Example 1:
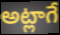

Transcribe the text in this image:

అట్లాగే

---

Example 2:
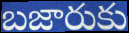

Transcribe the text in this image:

బజారుకు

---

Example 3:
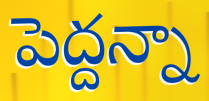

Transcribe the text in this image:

పెద్దన్నా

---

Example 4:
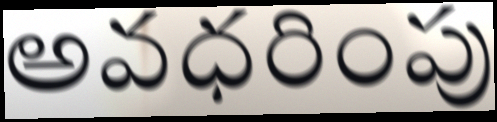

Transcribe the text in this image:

అవధరింపు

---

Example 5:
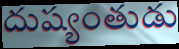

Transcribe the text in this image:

దుష్యంతుడు